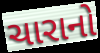
ચારાનો